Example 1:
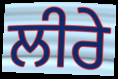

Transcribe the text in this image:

ਲੀਰੇ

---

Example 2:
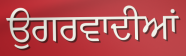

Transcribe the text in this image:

ਉਗਰਵਾਦੀਆਂ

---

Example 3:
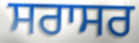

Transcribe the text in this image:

ਸਰਾਸਰ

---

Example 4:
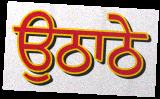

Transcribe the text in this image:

ਉਠਾਠੇ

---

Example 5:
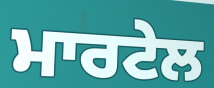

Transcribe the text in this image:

ਮਾਰਟੇਲ